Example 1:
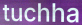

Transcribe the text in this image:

tuchha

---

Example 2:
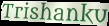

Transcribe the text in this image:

Trishanku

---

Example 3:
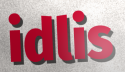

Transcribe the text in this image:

idlis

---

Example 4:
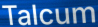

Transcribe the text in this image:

Talcum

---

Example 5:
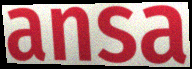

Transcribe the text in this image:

ansa